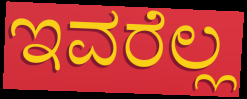
ಇವರೆಲ್ಲ